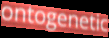
ontogenetic